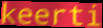
keerti